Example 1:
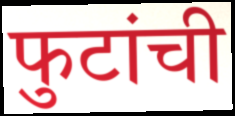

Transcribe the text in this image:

फुटांची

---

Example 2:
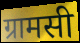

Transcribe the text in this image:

ग्रामसी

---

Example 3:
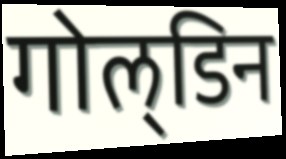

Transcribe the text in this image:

गोल्डिन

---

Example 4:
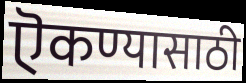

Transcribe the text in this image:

ऎकण्यासाठी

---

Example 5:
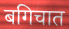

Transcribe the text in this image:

बगिचात